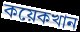
কয়েকখান